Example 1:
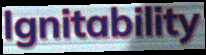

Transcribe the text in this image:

Ignitability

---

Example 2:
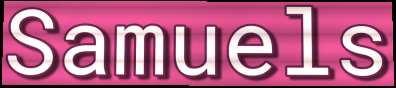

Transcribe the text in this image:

Samuels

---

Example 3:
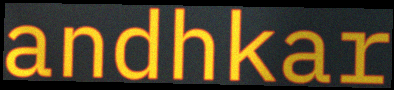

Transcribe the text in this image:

andhkar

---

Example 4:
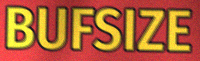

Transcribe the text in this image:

BUFSIZE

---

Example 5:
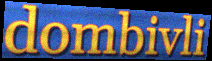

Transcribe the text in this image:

dombivli